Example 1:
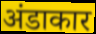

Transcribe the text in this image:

अंडाकार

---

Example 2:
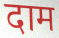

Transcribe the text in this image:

दाम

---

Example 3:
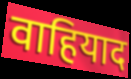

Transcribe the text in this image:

वाहियाद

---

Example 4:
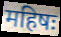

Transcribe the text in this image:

महिषः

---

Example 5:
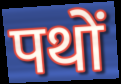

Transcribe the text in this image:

पथों